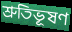
শ্রুতিভূষণ